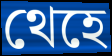
থেহে